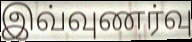
இவ்வுணர்வு